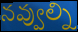
నవ్వుల్ని